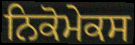
ਨਿਕੋਮੇਕਸ